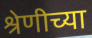
श्रेणीच्या